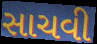
સાચવી